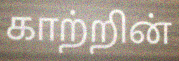
காற்றின்